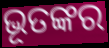
ଭୂତଙ୍କର